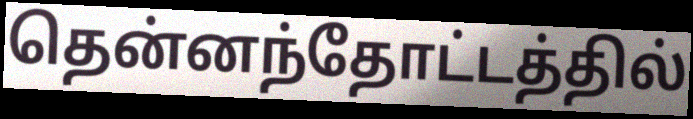
தென்னந்தோட்டத்தில்